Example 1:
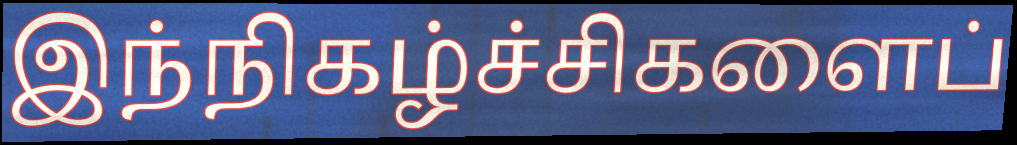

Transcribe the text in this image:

இந்நிகழ்ச்சிகளைப்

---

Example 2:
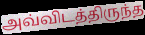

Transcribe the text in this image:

அவ்விடத்திருந்த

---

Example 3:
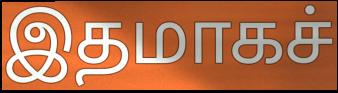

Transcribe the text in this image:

இதமாகச்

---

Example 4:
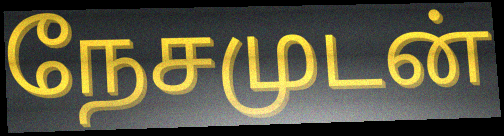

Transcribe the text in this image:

நேசமுடன்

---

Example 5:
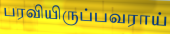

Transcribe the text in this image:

பரவியிருப்பவராய்